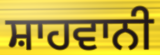
ਸ਼ਾਹਵਾਨੀ